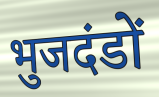
भुजदंडों